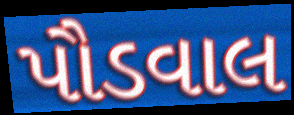
પૌડવાલ